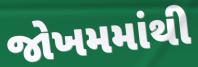
જોખમમાંથી